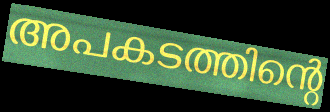
അപകടത്തിന്റെ